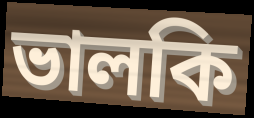
ভালকি